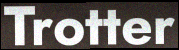
Trotter